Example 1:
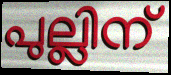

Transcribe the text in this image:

പുല്ലിന്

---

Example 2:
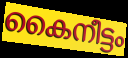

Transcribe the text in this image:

കൈനീട്ടം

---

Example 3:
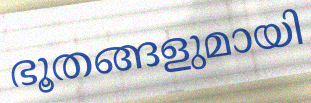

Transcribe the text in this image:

ഭൂതങ്ങളുമായി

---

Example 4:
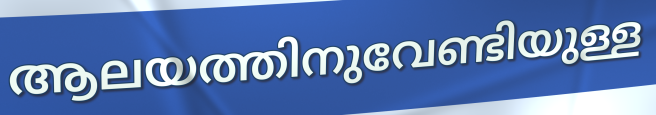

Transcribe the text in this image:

ആലയത്തിനുവേണ്ടിയുള്ള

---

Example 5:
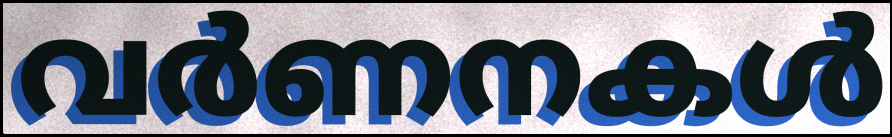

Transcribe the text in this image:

വർണനകൾ